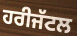
ਹਰੀਜੱਟਲ